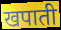
खपाती